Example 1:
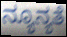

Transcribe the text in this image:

ನ್ಯೂನ್ಯತೆ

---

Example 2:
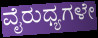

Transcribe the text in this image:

ವೈರುಧ್ಯಗಳೇ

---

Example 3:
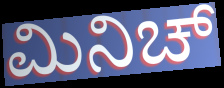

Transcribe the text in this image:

ಮಿನಿಚ್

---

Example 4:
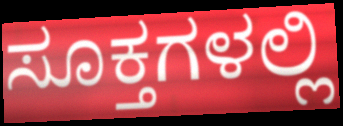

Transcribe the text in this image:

ಸೂಕ್ತಗಳಲ್ಲಿ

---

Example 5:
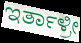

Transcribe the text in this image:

ಇರ್ತಾಳ್ರೀ